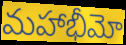
మహాభీమో